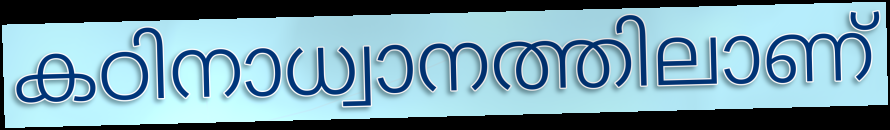
കഠിനാധ്വാനത്തിലാണ്